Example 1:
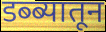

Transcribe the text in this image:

डब्ब्यातून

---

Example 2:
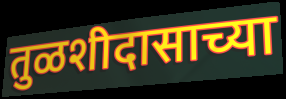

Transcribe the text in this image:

तुळशीदासाच्या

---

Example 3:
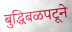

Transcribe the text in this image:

बुद्धिबळपटूने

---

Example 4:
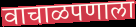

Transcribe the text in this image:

वाचाळपणाला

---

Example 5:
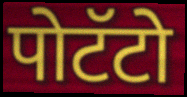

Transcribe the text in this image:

पोटॅटो